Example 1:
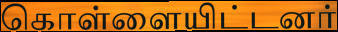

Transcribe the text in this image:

கொள்ளையிட்டனர்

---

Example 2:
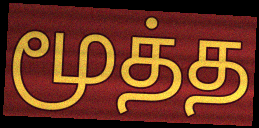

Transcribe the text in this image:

மூத்த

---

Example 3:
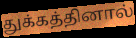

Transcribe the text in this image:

துக்கத்தினால்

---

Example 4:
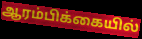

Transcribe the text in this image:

ஆரம்பிக்கையில்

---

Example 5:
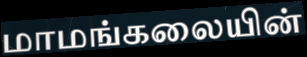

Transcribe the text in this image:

மாமங்கலையின்